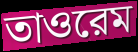
তাওরেম